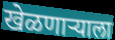
खेळणाऱ्याला